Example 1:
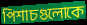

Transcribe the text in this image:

পিশাচগুলোকে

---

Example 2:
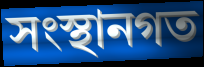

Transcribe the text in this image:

সংস্থানগত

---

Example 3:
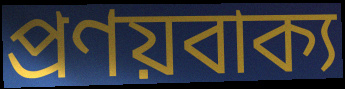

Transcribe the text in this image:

প্রণয়বাক্য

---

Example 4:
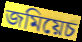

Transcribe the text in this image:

জমিয়েচ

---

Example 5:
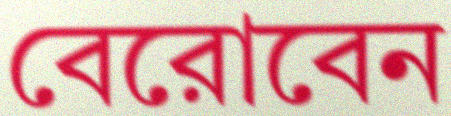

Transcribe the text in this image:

বেরোবেন